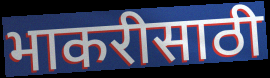
भाकरीसाठी